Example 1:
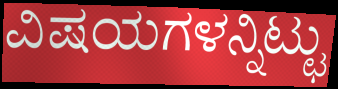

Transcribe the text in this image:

ವಿಷಯಗಳನ್ನಿಟ್ಟು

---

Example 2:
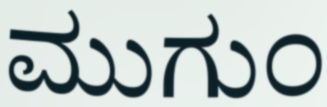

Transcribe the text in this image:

ಮುಗುಂ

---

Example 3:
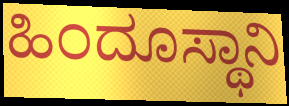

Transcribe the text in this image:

ಹಿಂದೂಸ್ಥಾನಿ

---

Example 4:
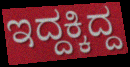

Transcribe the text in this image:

ಇದ್ದಕ್ಕಿದ್ದ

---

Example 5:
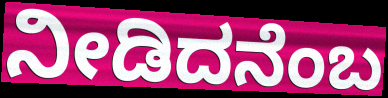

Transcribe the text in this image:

ನೀಡಿದನೆಂಬ